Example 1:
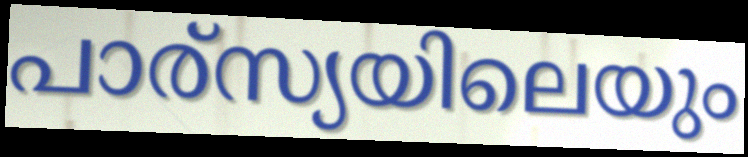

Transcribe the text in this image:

പാര്സ്യയിലെയും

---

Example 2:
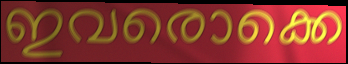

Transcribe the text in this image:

ഇവരൊക്കെ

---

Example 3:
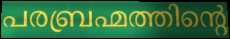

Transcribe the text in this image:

പരബ്രഹ്മത്തിന്റെ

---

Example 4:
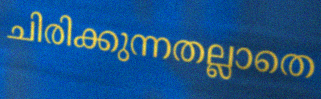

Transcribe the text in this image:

ചിരിക്കുന്നതല്ലാതെ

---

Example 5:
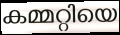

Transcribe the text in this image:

കമ്മറ്റിയെ